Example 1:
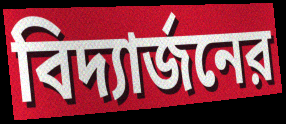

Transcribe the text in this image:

বিদ্যার্জনের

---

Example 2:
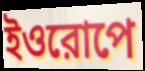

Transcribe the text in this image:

ইওরোপে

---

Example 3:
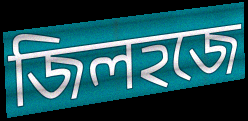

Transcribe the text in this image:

জিলহজে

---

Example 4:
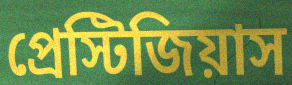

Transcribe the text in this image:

প্রেস্টিজিয়াস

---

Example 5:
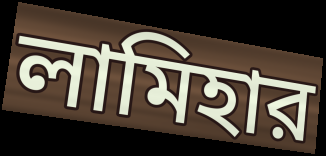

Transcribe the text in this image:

লামিহার